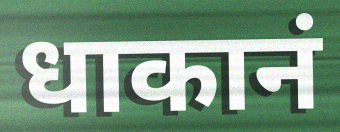
धाकानं